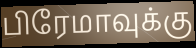
பிரேமாவுக்கு